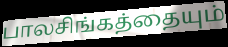
பாலசிங்கத்தையும்